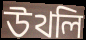
উথলি